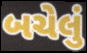
બચેલું